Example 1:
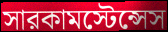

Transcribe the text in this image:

সারকামস্টেন্সেস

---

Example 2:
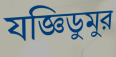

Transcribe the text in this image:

যজ্ঞিডুমুর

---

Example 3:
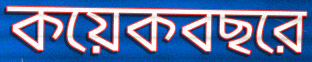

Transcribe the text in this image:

কয়েকবছরে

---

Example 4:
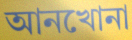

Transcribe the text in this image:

আনখোনা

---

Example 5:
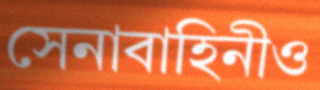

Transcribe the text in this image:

সেনাবাহিনীও